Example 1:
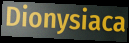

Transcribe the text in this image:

Dionysiaca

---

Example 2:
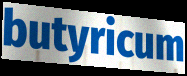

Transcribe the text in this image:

butyricum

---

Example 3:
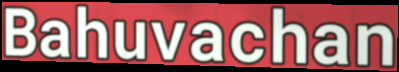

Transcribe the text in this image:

Bahuvachan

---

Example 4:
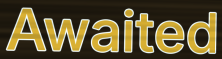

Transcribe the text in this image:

Awaited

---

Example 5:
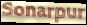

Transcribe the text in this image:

Sonarpur